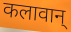
कलावान्